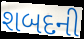
શબદની